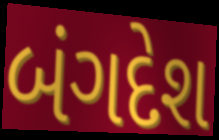
બંગદેશ